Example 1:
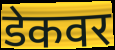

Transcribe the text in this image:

डेकवर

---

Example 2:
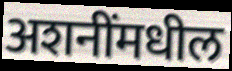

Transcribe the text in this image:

अशनींमधील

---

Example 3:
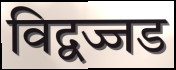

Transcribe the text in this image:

विद्वज्जड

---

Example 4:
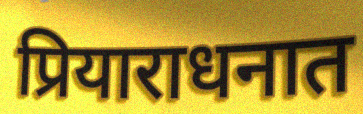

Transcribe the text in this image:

प्रियाराधनात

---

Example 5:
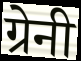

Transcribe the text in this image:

ग्रेनी